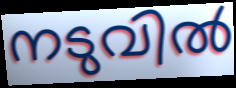
നടുവിൽ